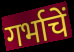
गर्भाचें